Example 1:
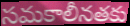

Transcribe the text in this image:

సమకాలీనతకు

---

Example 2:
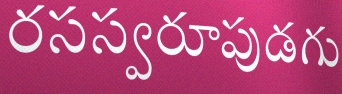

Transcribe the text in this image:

రసస్వరూపుడగు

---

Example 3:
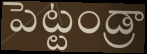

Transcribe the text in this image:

పెట్టండ్రా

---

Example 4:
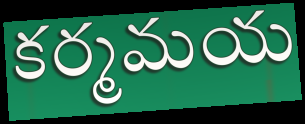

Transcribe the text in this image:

కర్మమయ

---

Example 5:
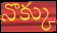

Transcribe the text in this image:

నొక్కు